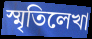
স্মৃতিলেখা